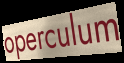
operculum